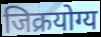
जिक्रयोग्य